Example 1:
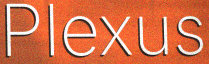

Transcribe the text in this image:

Plexus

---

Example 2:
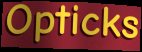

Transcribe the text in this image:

Opticks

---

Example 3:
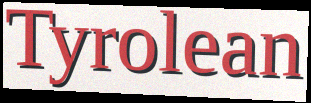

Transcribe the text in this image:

Tyrolean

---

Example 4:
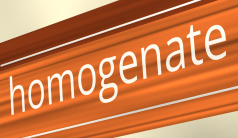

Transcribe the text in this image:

homogenate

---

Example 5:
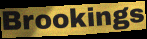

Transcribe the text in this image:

Brookings